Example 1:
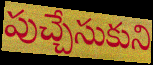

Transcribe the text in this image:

పుచ్చేసుకుని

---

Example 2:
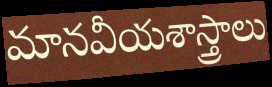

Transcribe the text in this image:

మానవీయశాస్త్రాలు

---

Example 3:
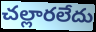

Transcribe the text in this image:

చల్లారలేదు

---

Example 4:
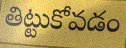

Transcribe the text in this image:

తిట్టుకోవడం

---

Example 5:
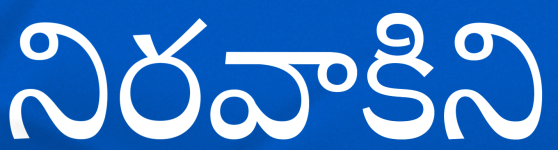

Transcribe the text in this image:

నిరవాకిని